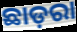
ଛାଡ଼ରା